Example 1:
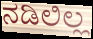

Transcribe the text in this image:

ನಡಿಲಿಲ್ಲ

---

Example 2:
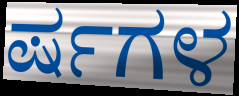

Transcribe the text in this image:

ರ್ಷಗಳ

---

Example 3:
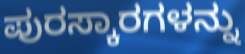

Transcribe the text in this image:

ಪುರಸ್ಕಾರಗಳನ್ನು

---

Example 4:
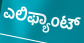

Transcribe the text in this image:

ಎಲಿಫ್ಯಾಂಟ್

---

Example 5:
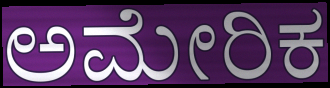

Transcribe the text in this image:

ಅಮೇರಿಕ